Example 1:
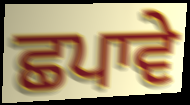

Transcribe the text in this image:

ਛਪਾਵੇ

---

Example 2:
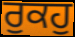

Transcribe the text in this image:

ਰੁਕਹੁ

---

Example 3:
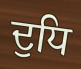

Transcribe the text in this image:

ਦੁਧਿ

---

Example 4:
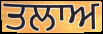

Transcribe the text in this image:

ਤਲਾਅ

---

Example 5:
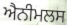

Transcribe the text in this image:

ਐਨੀਮਲਸ